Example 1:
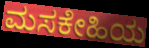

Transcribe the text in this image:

ಮಸಕೇಹಿಯ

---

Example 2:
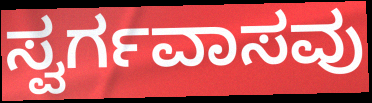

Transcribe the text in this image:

ಸ್ವರ್ಗವಾಸವು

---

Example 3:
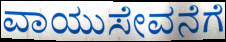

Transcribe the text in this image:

ವಾಯುಸೇವನೆಗೆ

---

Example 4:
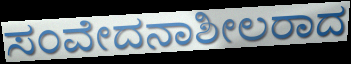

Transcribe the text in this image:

ಸಂವೇದನಾಶೀಲರಾದ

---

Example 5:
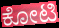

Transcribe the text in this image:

ಕೋಟಿ